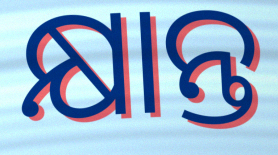
କ୍ଷାନ୍ତ